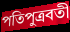
পতিপুত্রবতী